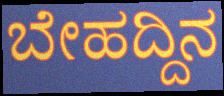
ಬೇಹದ್ದಿನ